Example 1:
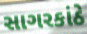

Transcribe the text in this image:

સાગરકાંઠે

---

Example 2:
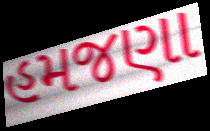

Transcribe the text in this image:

હમજણા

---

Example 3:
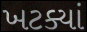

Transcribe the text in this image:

ખટક્યાં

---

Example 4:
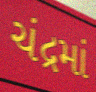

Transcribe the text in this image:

ચંદ્રમાં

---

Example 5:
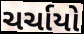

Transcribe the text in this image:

ચર્ચાયો